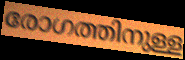
രോഗത്തിനുള്ള